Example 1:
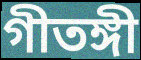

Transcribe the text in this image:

গীতঙ্গী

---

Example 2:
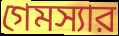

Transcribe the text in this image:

গেমস্যার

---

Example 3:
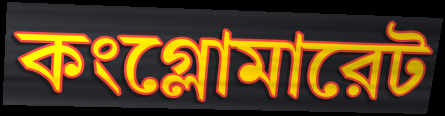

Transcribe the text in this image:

কংগ্লোমারেট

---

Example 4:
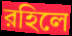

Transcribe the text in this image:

রহিলে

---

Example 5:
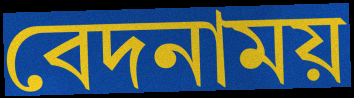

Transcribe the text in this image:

বেদনাময়